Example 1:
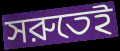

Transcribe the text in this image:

সৰুতেই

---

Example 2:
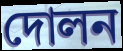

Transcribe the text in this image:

দোলন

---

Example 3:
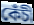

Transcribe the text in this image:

কেঁচী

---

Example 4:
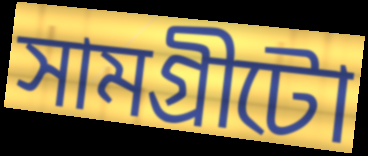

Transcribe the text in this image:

সামগ্ৰীটো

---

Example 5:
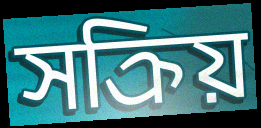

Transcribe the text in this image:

সক্ৰিয়